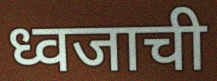
ध्वजाची